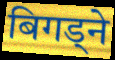
बिगड्ने